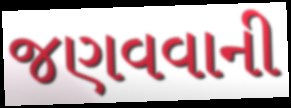
જણવવાની